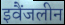
इवैंजलीन